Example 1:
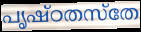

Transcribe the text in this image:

പൃഷ്ഠതസ്തേ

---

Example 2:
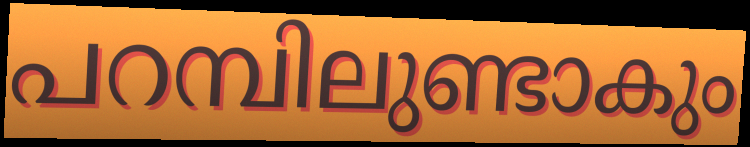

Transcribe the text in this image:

പറമ്പിലുണ്ടാകും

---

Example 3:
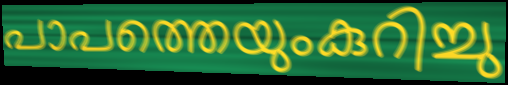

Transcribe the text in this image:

പാപത്തെയുംകുറിച്ചു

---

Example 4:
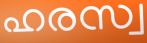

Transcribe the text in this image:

ഹരസ്വ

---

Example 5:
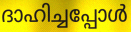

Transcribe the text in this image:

ദാഹിച്ചപ്പോൾ